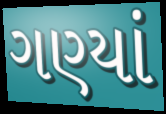
ગણ્યાં